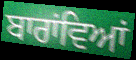
ਬਾਰਾਂਵਿਆਂ